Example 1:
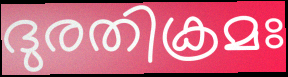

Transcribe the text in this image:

ദുരതിക്രമഃ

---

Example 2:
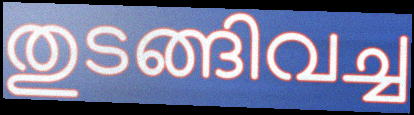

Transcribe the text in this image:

തുടങ്ങിവച്ച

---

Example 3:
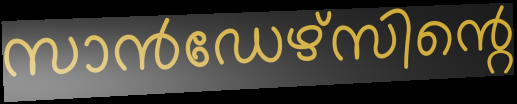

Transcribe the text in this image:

സാൻഡേഴ്സിന്റെ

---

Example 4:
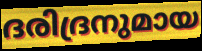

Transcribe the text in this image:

ദരിദ്രനുമായ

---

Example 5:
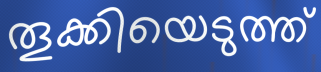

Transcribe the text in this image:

തൂക്കിയെടുത്ത്